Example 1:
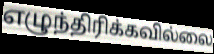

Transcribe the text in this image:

எழுந்திரிக்கவில்லை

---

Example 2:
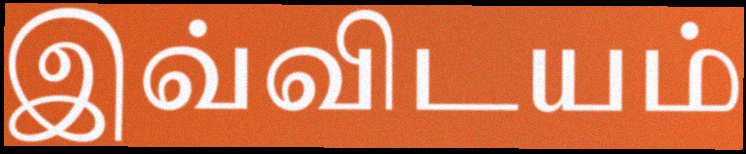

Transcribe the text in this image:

இவ்விடயம்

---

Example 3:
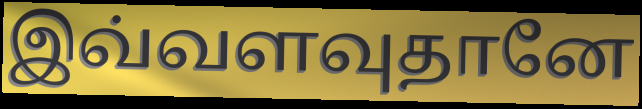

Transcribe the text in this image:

இவ்வளவுதானே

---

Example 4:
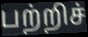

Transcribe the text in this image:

பற்றிச்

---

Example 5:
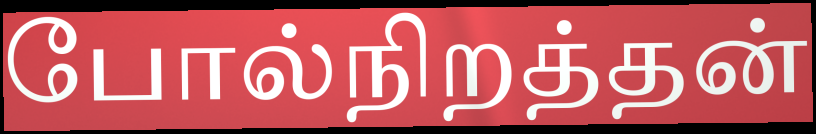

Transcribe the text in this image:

போல்நிறத்தன்